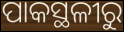
ପାକସ୍ଥଳୀରୁ